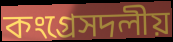
কংগ্রেসদলীয়